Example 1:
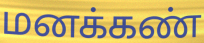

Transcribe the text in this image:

மனக்கண்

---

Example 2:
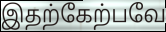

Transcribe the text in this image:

இதற்கேற்பவே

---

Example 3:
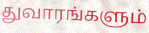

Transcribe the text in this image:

துவாரங்களும்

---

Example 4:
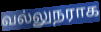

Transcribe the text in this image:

வல்லுநராக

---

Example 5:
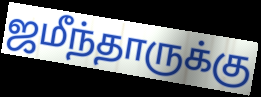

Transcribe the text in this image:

ஜமீந்தாருக்கு